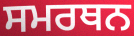
ਸਮਰਥਨ